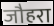
जौहरा